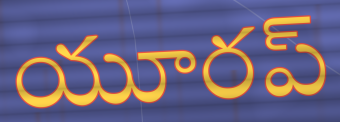
యూరప్